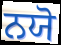
ਨਯੋ